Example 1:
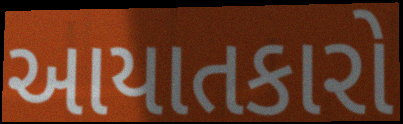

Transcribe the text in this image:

આયાતકારો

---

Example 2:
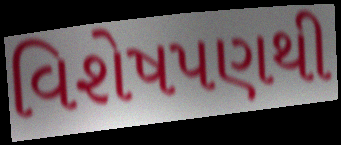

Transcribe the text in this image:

વિશેષપણથી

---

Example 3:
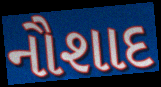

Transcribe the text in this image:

નૌશાદ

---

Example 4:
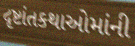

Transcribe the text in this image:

દૃષ્ટાંતકથાઓમાંની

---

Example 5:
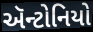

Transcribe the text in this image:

ઍન્ટોનિયો